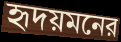
হৃদয়মনের